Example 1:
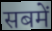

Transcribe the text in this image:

सबमें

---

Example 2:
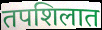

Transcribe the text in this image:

तपशिलात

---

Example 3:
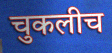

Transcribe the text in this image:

चुकलीच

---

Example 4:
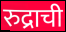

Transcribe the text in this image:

रुद्राची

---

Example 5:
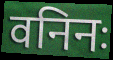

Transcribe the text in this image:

वनिनः